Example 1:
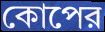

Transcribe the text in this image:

কোপের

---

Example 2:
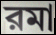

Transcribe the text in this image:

রমা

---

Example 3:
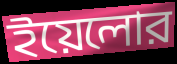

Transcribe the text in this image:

ইয়েলোর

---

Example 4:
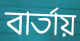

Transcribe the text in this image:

বার্তায়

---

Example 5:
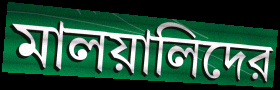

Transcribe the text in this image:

মালয়ালিদের